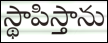
స్థాపిస్తాను